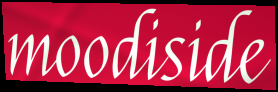
moodiside